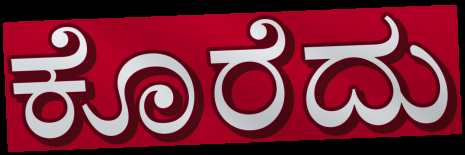
ಕೊರೆದು